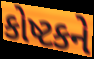
કોષ્ટકને